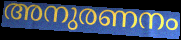
അനുരണനം